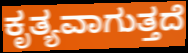
ಕೃತ್ಯವಾಗುತ್ತದೆ